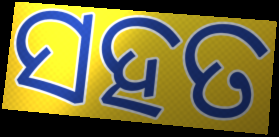
ସହତ